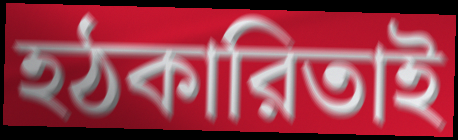
হঠকারিতাই